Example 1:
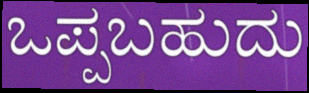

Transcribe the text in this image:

ಒಪ್ಪಬಹುದು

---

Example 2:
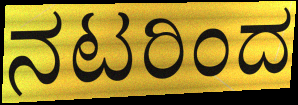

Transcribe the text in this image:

ನಟರಿಂದ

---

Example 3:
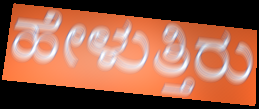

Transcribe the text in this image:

ಹೇಳುತ್ತಿರು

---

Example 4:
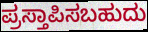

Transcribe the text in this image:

ಪ್ರಸ್ತಾಪಿಸಬಹುದು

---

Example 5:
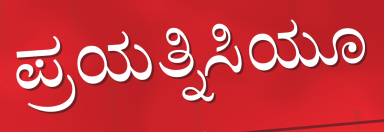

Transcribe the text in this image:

ಪ್ರಯತ್ನಿಸಿಯೂ